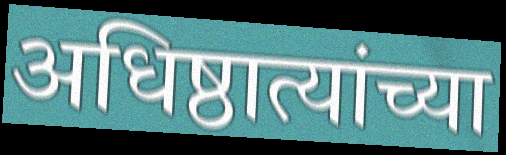
अधिष्ठात्यांच्या